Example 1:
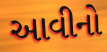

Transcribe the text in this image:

આવીનો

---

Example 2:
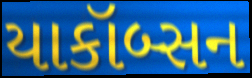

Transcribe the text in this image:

યાકૉબ્સન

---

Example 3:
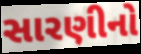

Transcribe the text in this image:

સારણીનો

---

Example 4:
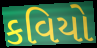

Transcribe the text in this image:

કવિયો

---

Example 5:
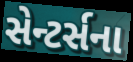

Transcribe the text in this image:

સેન્ટર્સના